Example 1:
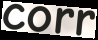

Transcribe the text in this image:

corr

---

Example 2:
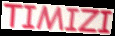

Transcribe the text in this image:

TIMIZI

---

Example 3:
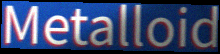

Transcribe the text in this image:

Metalloid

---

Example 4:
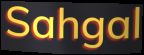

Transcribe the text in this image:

Sahgal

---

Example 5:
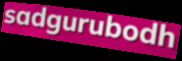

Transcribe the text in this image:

sadgurubodh